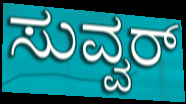
ಸುವ್ವರ್